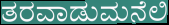
ತರವಾಡುಮನೆಲಿ